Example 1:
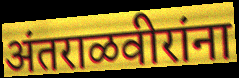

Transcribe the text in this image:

अंतराळवीरांना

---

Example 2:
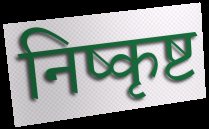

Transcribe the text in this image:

निष्कृष्ट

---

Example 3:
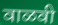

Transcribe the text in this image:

वाळवी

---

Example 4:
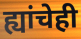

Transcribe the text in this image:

ह्यांचेही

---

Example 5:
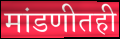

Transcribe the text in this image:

मांडणीतही